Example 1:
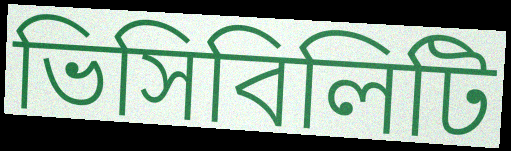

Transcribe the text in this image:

ভিসিবিলিটি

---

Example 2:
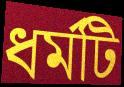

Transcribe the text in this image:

ধর্মটি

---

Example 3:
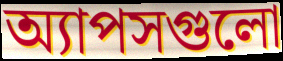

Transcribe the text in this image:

অ্যাপসগুলো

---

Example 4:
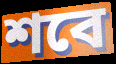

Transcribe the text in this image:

শবে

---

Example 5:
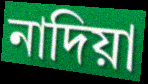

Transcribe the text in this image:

নাদিয়া